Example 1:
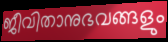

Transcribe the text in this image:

ജീവിതാനുഭവങ്ങളും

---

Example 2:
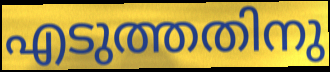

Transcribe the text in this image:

എടുത്തതിനു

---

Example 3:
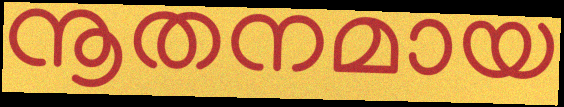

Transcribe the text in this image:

നൂതനമായ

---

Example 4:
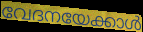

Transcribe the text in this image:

വേദനയേക്കാൾ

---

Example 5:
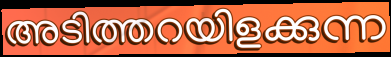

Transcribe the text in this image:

അടിത്തറയിളക്കുന്ന